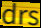
drs